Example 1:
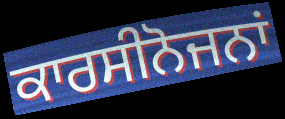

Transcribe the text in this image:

ਕਾਰਸੀਨੋਜਨਾਂ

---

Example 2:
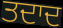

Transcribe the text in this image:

ਤਦਾਦ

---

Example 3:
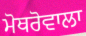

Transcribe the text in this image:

ਮੋਥਰੋਵਾਲਾ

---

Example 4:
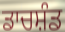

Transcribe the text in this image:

ਡਾਚਸ਼ੰਡ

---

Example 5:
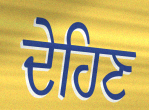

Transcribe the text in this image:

ਦੇਹਿਣ